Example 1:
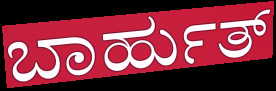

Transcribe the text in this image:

ಬಾರ್ಹುತ್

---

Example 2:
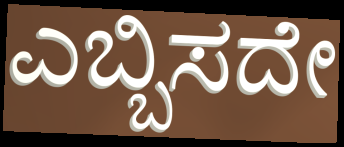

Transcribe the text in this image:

ಎಬ್ಬಿಸದೇ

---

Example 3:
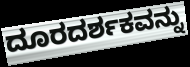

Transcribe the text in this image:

ದೂರದರ್ಶಕವನ್ನು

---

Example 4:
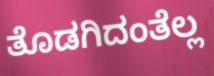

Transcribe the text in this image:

ತೊಡಗಿದಂತೆಲ್ಲ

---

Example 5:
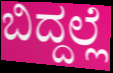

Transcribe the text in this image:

ಬಿದ್ದಲ್ಲೆ